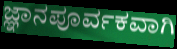
ಜ್ಞಾನಪೂರ್ವಕವಾಗಿ